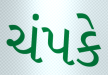
ચંપકે